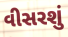
વીસરશું